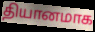
தியானமாக